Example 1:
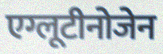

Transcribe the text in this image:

एग्लूटीनोजेन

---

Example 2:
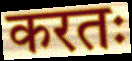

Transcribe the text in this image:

करतः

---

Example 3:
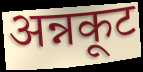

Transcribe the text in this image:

अन्नकूट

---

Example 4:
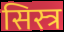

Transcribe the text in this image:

सिस्त्र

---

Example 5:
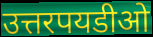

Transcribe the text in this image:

उत्तरपयडीओ